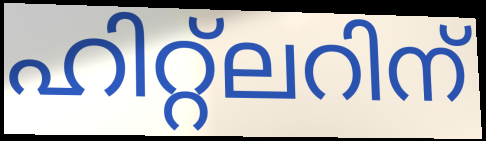
ഹിറ്റ്ലറിന്